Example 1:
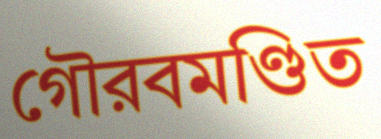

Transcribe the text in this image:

গৌরবমণ্ডিত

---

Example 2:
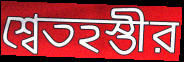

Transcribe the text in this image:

শ্বেতহস্তীর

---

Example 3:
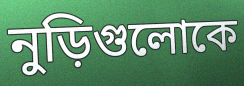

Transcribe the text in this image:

নুড়িগুলোকে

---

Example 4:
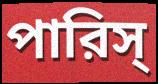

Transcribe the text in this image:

পারিস্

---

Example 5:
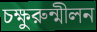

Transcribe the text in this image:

চক্ষুরুন্মীলন